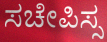
ಸಚೇಪಿಸ್ಸ